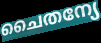
ചൈതന്യേ